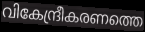
വികേന്ദ്രീകരണത്തെ